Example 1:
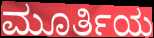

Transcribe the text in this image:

ಮೂರ್ತಿಯ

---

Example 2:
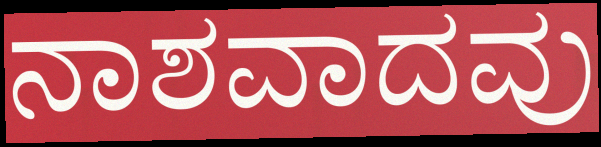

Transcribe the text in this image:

ನಾಶವಾದವು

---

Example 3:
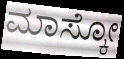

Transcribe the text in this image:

ಮಾಸ್ಕೋ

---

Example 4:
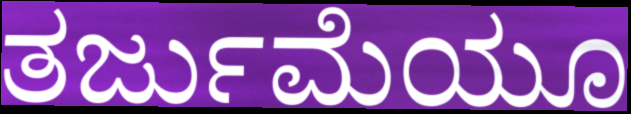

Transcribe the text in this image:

ತರ್ಜುಮೆಯೂ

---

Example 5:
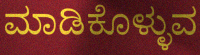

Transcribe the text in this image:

ಮಾಡಿಕೊಳ್ಳುವ